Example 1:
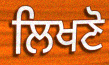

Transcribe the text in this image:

ਲਿਖਣੋ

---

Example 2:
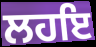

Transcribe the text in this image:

ਲਹਇ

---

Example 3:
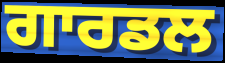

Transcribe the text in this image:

ਗਾਰਡਲ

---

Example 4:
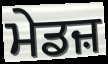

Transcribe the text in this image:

ਮੇਡਜ਼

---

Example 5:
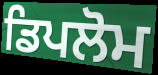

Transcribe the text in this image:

ਡਿਪਲੋਮ